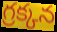
గ్రక్కన